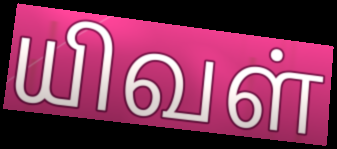
யிவள்